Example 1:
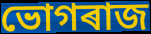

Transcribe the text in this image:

ভোগৰাজ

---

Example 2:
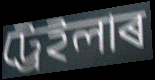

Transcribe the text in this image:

ট্ৰেইলাৰ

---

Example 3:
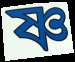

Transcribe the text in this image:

ষ্ণ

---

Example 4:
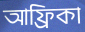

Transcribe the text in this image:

আফ্ৰিকা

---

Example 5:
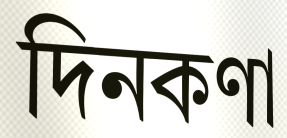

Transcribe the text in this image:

দিনকণা